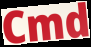
Cmd